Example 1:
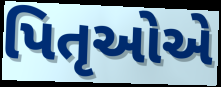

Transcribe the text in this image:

પિતૃઓેએ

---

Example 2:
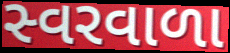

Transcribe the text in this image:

સ્વરવાળા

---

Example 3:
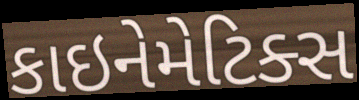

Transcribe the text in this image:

કાઇનેમેટિક્સ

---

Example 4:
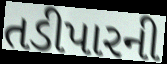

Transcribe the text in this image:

તડીપારની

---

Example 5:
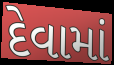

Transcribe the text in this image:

દેવામાં